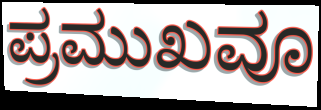
ಪ್ರಮುಖವೂ